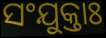
ସଂଯୁକ୍ତାଃ